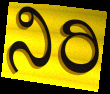
ನಿರಿ